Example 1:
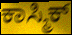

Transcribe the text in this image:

ಕಾಸ್ಮಿಕ್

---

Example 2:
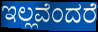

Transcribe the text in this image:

ಇಲ್ಲವೆಂದರೆ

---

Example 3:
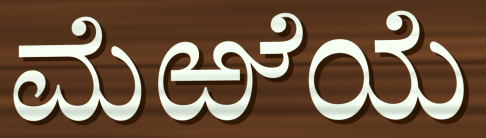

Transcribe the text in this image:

ಮೆಱೆಯೆ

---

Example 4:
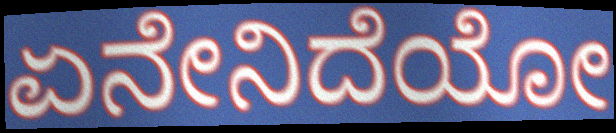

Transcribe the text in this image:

ಏನೇನಿದೆಯೋ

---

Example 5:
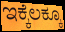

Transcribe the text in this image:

ಇಕ್ಕೆಲಕ್ಕೂ